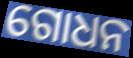
ଗୋଧନ